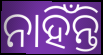
ନାହିଁନ୍ତି